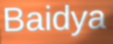
Baidya